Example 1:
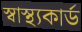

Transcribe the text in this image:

স্বাস্থ্যকার্ড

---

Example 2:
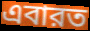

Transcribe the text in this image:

এবারত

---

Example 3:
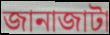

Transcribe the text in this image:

জানাজাটা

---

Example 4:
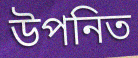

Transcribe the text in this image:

উপনিত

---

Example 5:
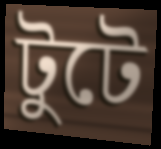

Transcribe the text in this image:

টুটে